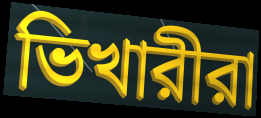
ভিখারীরা